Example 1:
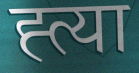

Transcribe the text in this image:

ह्त्या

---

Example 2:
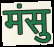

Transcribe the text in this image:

मंसु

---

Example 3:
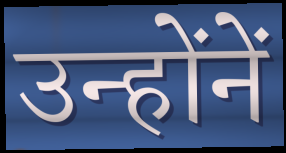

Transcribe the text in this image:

उन्होंनें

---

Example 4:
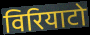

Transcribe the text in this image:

विरियाटो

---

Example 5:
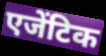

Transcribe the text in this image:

एजेंटिक